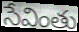
సేవింతు